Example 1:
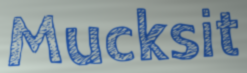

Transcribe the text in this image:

Mucksit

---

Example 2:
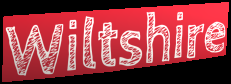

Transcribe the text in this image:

Wiltshire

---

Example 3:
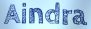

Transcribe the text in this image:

Aindra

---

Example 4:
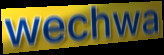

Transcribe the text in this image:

wechwa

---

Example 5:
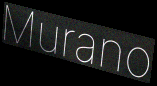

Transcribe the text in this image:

Murano